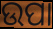
ଉପା